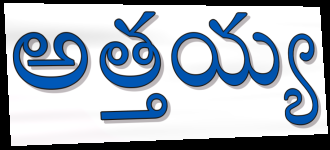
అత్తయ్య